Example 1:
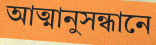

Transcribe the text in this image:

আত্মানুসন্ধানে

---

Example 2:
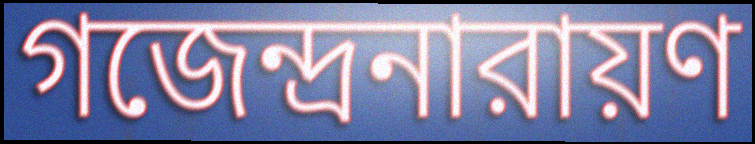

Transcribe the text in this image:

গজেন্দ্রনারায়ণ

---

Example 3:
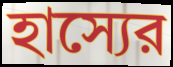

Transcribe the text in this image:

হাস্যের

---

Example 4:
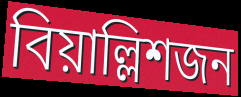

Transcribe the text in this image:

বিয়াল্লিশজন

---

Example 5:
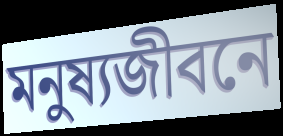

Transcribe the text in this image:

মনুষ্যজীবনে